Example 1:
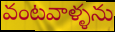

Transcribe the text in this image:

వంటవాళ్ళను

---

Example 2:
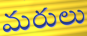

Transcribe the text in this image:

మరులు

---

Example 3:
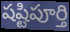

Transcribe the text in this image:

షష్టిపూర్తి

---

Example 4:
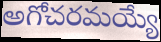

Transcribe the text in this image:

అగోచరమయ్యే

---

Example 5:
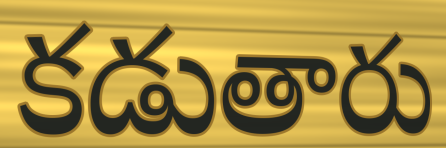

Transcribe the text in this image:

కడుతారు